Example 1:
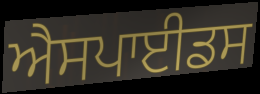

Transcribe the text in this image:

ਐਸਪਾਈਡਸ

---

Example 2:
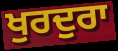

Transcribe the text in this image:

ਖੁਰਦੁਰਾ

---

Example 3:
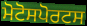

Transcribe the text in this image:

ਮੋਟੋਸਪੋਰਟਸ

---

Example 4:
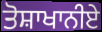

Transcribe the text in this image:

ਤੋਸ਼ਾਖਾਨੀਏ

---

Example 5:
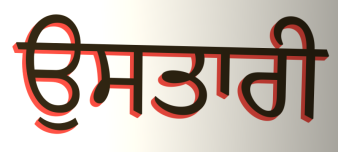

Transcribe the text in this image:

ਉਸਤਾਰੀ